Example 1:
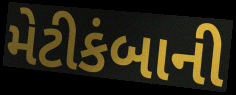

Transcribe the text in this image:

મેટીકંબાની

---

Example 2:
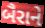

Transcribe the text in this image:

બૈરાને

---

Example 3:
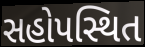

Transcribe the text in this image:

સહોપસ્થિત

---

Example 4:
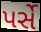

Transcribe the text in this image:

પર્સે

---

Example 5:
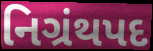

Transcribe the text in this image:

નિગ્રંથપદ